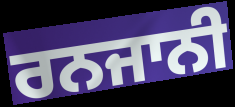
ਰਨਜਾਨੀ